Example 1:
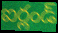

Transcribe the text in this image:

ఐర్లండ్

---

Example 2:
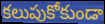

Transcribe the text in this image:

కలుపుకోకుండా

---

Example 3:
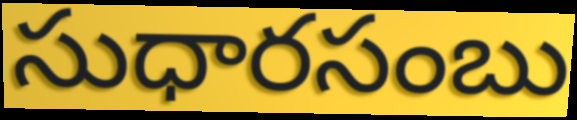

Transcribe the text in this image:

సుధారసంబు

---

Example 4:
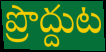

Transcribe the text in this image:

ప్రొద్దుట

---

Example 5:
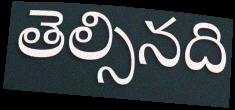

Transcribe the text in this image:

తెల్సినది